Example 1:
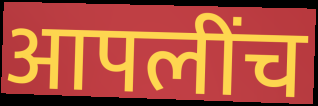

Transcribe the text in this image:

आपलींच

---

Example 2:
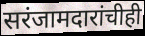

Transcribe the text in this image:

सरंजामदारांचीही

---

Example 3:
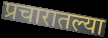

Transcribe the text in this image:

प्रचारातल्या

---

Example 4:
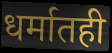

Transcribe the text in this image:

धर्मातही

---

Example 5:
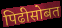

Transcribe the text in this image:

पिढीसोबत